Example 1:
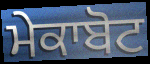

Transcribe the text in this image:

ਮੇਕਾਬੋਟ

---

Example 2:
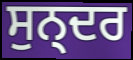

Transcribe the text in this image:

ਸੁਨ੍ਦਰ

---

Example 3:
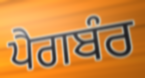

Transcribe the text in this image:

ਪੈਗਬੰਰ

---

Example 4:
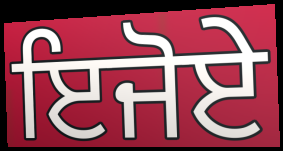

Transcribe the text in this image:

ਇਜੋਏ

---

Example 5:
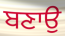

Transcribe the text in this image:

ਬਣਾਉ